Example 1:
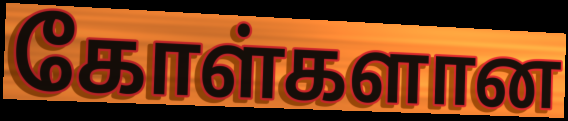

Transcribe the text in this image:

கோள்களான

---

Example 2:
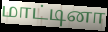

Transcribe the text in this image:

மாட்டினா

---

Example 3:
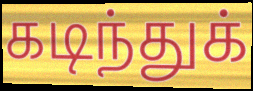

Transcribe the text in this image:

கடிந்துக்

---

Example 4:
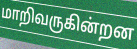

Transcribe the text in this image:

மாறிவருகின்றன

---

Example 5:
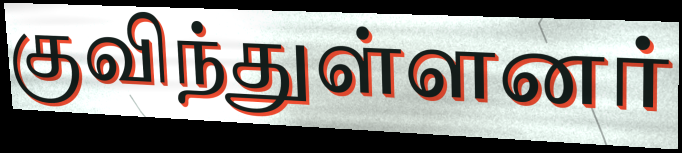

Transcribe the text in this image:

குவிந்துள்ளனர்